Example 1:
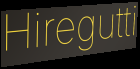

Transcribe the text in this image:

Hiregutti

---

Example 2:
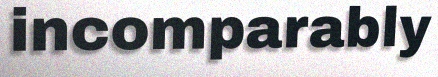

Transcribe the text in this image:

incomparably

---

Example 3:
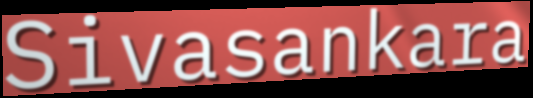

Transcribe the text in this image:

Sivasankara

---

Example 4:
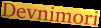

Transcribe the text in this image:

Devnimori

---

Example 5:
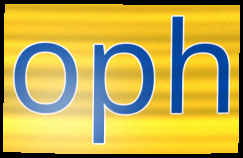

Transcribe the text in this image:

oph